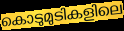
കൊടുമുടികളിലെ